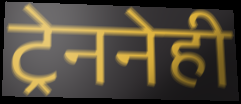
ट्रेननेही